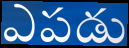
ఎపడు